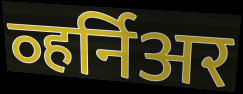
व्हर्निअर